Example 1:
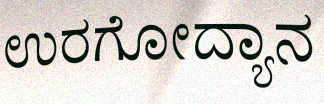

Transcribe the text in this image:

ಉರಗೋದ್ಯಾನ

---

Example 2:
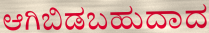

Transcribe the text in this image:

ಆಗಿಬಿಡಬಹುದಾದ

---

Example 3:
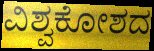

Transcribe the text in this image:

ವಿಶ್ವಕೋಶದ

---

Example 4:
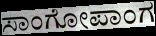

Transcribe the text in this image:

ಸಾಂಗೋಪಾಂಗ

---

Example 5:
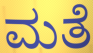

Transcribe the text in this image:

ಮತೆ